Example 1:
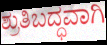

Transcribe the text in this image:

ಶ್ರುತಿಬದ್ಧವಾಗಿ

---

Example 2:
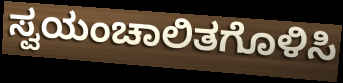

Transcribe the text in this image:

ಸ್ವಯಂಚಾಲಿತಗೊಳಿಸಿ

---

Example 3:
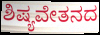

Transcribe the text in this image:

ಶಿಷ್ಯವೇತನದ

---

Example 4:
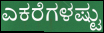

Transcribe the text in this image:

ಎಕರೆಗಳಷ್ಟು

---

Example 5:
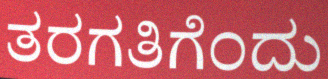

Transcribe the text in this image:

ತರಗತಿಗೆಂದು